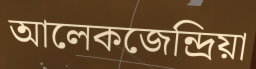
আলেকজেন্দ্ৰিয়া